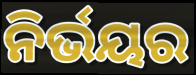
ନିର୍ଭୟର